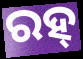
ରହ୍